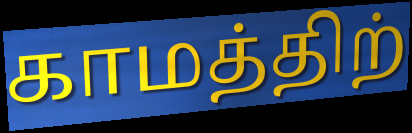
காமத்திற்